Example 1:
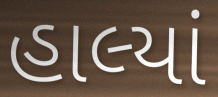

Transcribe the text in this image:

હાલ્યાં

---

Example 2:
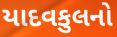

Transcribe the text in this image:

યાદવકુલનો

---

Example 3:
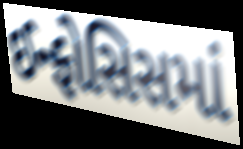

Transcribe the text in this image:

ઈન્ફોસિસમાં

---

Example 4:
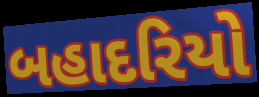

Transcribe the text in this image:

બહાદરિયો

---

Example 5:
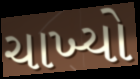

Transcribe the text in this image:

ચાખ્યો